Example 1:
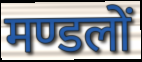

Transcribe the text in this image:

मण्‍डलों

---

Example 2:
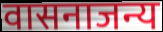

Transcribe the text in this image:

वासनाजन्य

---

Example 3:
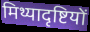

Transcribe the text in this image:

मिथ्यादृष्टियों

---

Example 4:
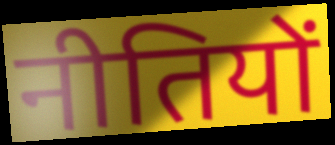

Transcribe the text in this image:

नीतियों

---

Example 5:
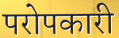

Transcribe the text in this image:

परोपकारी